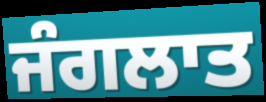
ਜੰਗਲਾਤ